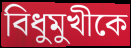
বিধুমুখীকে